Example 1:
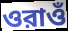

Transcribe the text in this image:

ওরাওঁ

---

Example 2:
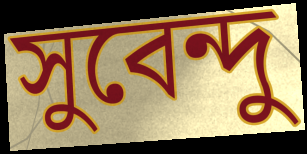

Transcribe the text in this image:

সুবেন্দু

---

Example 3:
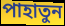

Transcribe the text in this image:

পাহাতুন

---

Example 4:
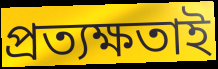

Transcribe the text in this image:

প্রত্যক্ষতাই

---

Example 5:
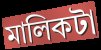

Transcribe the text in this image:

মালিকটা